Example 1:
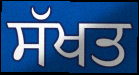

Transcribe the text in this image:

ਸੱਖਤ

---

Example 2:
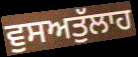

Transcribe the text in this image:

ਵੁਸਅਤੁੱਲਾਹ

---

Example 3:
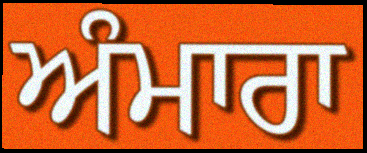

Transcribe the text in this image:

ਅੰਮਾਰਾ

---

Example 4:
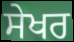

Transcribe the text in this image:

ਸੇਖਰ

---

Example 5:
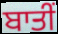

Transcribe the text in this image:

ਬਾਤੀਂ